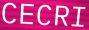
CECRI